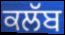
ਕਲੱਬ